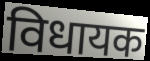
विधायक